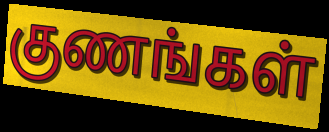
குணங்கள்